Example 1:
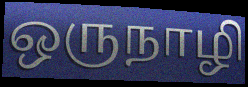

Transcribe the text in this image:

ஒருநாழி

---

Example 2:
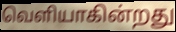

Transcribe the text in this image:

வெளியாகின்றது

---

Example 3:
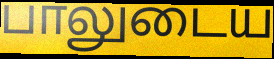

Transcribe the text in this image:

பாலுடைய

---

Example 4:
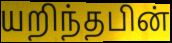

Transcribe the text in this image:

யறிந்தபின்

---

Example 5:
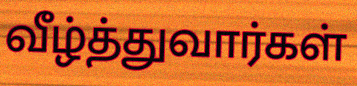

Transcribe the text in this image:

வீழ்த்துவார்கள்